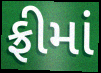
ફ્રીમાં